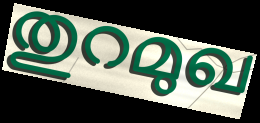
തുറമുഖ